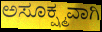
ಅಸೂಕ್ಷ್ಮವಾಗಿ